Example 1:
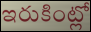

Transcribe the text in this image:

ఇరుకింట్లో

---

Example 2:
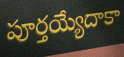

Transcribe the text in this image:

పూర్తయ్యేదాకా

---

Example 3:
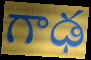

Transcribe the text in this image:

గాఢ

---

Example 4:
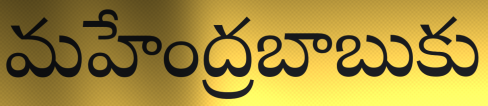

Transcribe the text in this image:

మహేంద్రబాబుకు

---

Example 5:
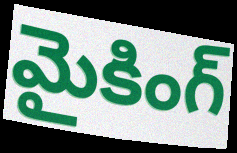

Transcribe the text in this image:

మైకింగ్